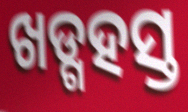
ଖଡ୍ଗହସ୍ତ